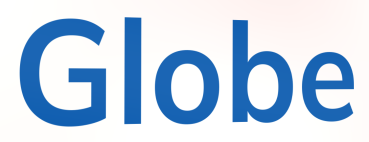
Globe